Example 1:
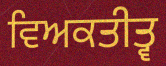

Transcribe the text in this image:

ਵਿਅਕਤੀਤ੍ਵ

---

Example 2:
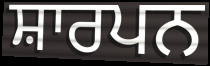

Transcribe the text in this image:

ਸ਼ਾਰਪਨ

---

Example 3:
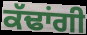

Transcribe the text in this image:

ਕੱਢਾਂਗੀ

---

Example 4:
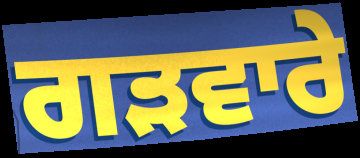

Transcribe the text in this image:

ਗੜਵਾਰੇ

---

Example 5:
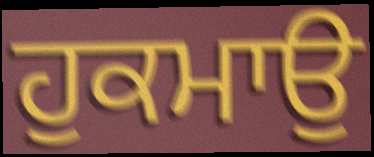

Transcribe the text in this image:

ਹੁਕਮਾਉ